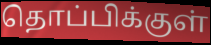
தொப்பிக்குள்